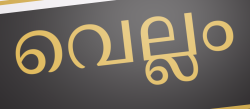
വെല്ലം